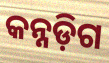
କନ୍ନଡ଼ିଗ